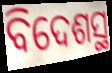
ବିଦେଶସ୍ଥ